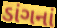
ડાંગનાં